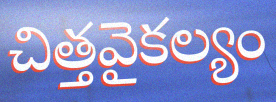
చిత్తవైకల్యం